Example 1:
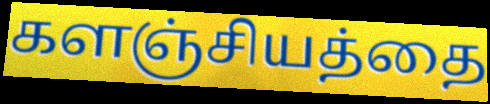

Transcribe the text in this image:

களஞ்சியத்தை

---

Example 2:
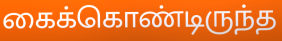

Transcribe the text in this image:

கைக்கொண்டிருந்த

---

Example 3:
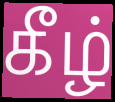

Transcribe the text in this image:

கீழ்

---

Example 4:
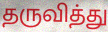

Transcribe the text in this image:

தருவித்து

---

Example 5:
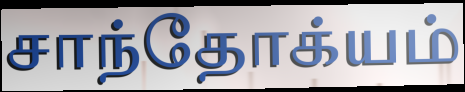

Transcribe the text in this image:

சாந்தோக்யம்